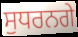
ਸੁਧਰਨਗੇ